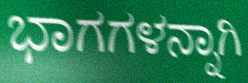
ಭಾಗಗಳನ್ನಾಗಿ